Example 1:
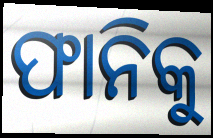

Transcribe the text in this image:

ଫାନିକୁ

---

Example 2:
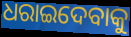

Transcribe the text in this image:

ଧରାଇଦେବାକୁ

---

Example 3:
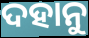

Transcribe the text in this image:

ଦହାନୁ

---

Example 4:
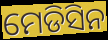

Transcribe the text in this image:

ମେଡିସିନ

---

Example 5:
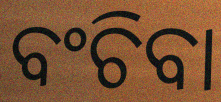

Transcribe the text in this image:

ବଂଚିବା